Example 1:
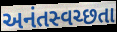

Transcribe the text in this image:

અનંતસ્વચ્છતા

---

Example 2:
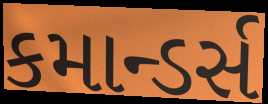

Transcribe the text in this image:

કમાન્ડર્સ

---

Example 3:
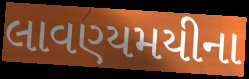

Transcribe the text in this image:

લાવણ્યમયીના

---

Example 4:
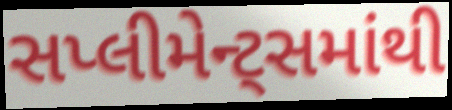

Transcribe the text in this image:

સપ્લીમેન્ટ્સમાંથી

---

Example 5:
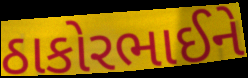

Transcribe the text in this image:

ઠાકોરભાઈને